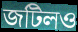
জটিলও